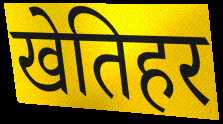
खेतिहर